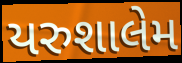
યરુશાલેમ